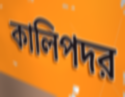
কালিপদর